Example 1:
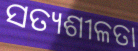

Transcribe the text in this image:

ସତ୍ୟଶୀଳତା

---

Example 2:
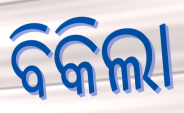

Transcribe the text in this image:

ବିକିଲା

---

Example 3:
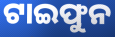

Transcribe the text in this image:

ଟାଇଫୁନ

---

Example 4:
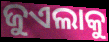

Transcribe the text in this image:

ଜୁଏଲାକୁ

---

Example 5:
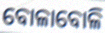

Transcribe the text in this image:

ବୋଳାବୋଳି